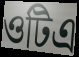
ওটিএ